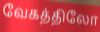
வேகத்திலோ